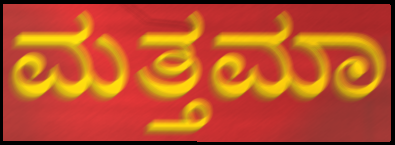
ಮತ್ತಮಾ